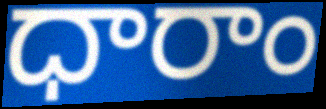
ధారాం